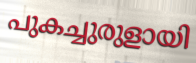
പുകച്ചുരുളായി